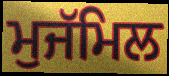
ਮੁਜੱਮਿਲ